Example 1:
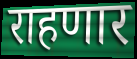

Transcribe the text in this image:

राहणार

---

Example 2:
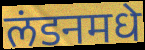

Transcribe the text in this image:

लंडनमधे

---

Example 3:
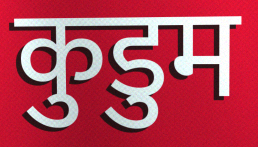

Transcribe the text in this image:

कुडुम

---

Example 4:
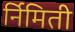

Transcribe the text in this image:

र्निमिती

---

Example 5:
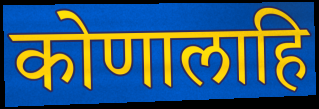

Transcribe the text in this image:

कोणालाहि